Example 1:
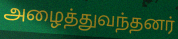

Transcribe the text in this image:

அழைத்துவந்தனர்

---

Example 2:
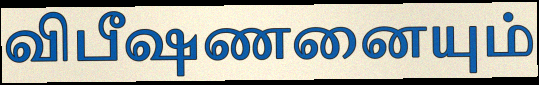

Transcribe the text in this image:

விபீஷணனையும்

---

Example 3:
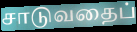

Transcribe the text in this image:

சாடுவதைப்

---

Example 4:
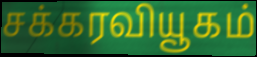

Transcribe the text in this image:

சக்கரவியூகம்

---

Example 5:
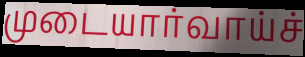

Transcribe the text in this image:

முடையார்வாய்ச்